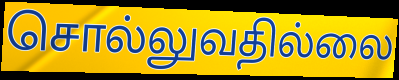
சொல்லுவதில்லை